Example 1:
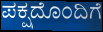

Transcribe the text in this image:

ಪಕ್ಷದೊಂದಿಗೆ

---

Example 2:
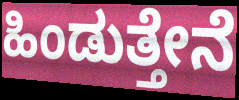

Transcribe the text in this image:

ಹಿಂಡುತ್ತೇನೆ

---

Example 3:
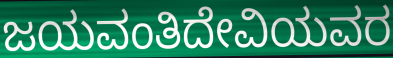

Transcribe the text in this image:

ಜಯವಂತಿದೇವಿಯವರ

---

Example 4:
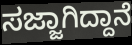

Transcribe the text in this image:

ಸಜ್ಜಾಗಿದ್ದಾನೆ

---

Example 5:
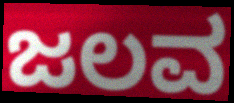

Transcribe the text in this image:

ಜಲವ